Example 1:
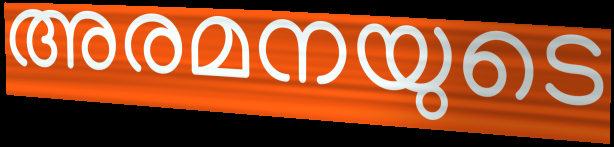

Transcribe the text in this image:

അരമനയുടെ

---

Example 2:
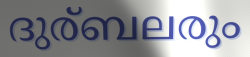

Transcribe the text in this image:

ദുര്ബലരും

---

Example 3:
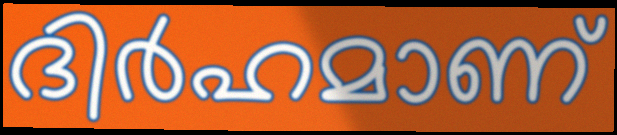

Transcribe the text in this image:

ദിർഹമാണ്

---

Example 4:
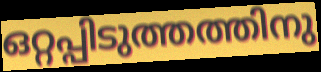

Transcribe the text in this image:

ഒറ്റപ്പിടുത്തത്തിനു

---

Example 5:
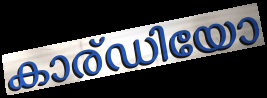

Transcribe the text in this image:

കാര്ഡിയോ